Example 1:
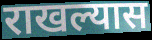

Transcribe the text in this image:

राखल्यास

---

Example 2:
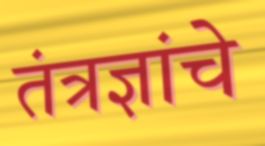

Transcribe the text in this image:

तंत्रज्ञांचे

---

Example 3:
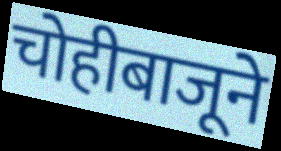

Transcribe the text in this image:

चोहीबाजूने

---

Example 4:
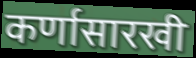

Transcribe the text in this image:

कर्णासारखी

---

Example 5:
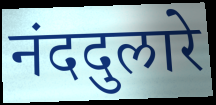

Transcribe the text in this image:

नंददुलारे